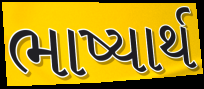
ભાષ્યાર્થ